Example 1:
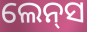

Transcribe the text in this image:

ଲେନ୍‌ସ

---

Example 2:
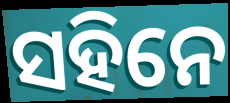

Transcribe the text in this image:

ସହିନେ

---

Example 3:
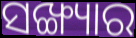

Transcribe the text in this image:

ସଙ୍ଖ୍ୟାର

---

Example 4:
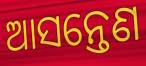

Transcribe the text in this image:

ଆସନ୍ତେଣ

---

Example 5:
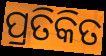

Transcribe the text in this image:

ପ୍ରତିକିତ